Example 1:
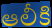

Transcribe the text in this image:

ఆలీకి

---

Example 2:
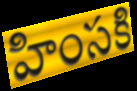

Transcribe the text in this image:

హింసకి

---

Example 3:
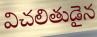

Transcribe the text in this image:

విచలితుడైన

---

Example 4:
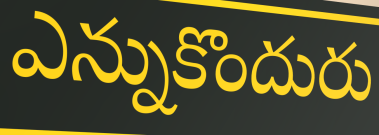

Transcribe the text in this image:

ఎన్నుకొందురు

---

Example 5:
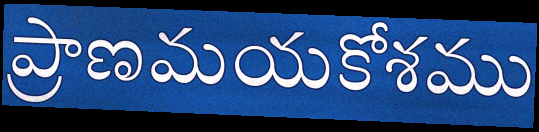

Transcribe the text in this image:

ప్రాణమయకోశము